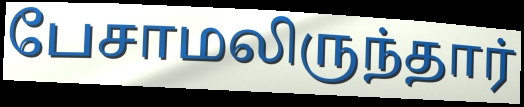
பேசாமலிருந்தார்